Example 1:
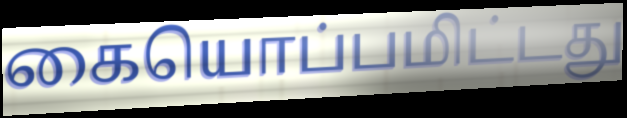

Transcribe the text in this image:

கையொப்பமிட்டது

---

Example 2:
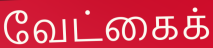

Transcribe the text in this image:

வேட்கைக்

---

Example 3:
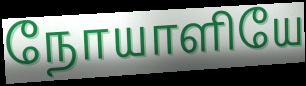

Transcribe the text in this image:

நோயாளியே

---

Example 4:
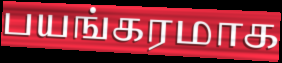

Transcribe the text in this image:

பயங்கரமாக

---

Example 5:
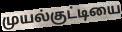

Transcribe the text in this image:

முயல்குட்டியை